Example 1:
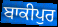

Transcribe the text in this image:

ਬਾਕੀਪੁਰ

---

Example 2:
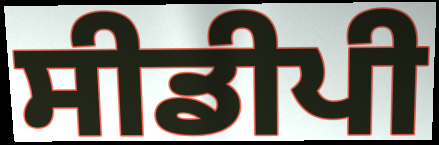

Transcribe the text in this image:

ਸੀਡੀਪੀ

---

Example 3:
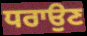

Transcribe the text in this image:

ਧਰਾਉਣ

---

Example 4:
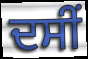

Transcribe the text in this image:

ਦਸੀਂ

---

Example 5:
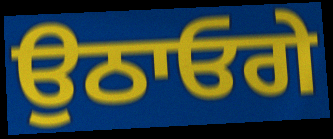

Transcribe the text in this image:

ਉਠਾਓਗੇ